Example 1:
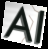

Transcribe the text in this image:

AI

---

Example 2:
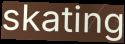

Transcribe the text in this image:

skating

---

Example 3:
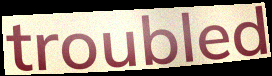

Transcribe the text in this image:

troubled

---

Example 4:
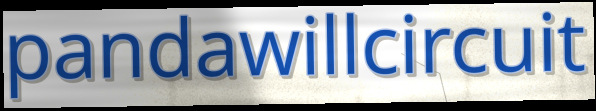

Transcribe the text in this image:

pandawillcircuit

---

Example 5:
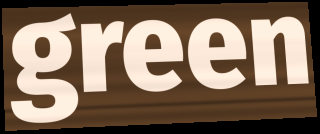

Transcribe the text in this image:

green